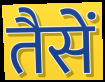
तैसें